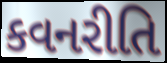
કવનરીતિ